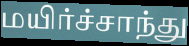
மயிர்ச்சாந்து